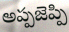
అప్పజెప్పి